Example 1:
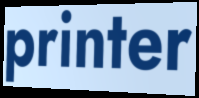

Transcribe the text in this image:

printer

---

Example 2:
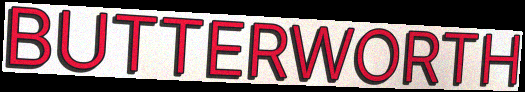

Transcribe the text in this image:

BUTTERWORTH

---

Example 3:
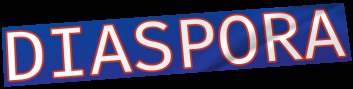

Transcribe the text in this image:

DIASPORA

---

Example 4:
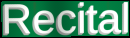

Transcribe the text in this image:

Recital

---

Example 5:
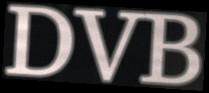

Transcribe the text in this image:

DVB